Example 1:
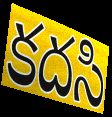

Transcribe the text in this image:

కదసి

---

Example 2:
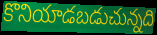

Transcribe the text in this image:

కొనియాడబడుచున్నది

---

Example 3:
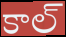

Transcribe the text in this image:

కాల్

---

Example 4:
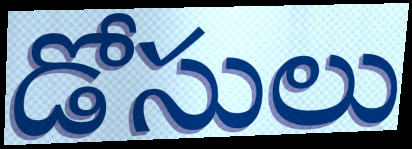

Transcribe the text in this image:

డోసులు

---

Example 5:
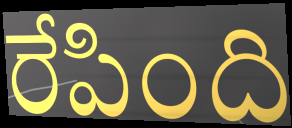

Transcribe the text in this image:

రేపింది